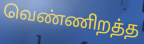
வெண்ணிறத்த